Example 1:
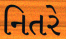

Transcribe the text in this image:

નિતરે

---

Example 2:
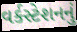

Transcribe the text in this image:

વર્કસ્ટેશનનું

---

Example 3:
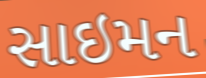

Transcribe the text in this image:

સાઇમન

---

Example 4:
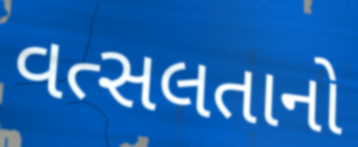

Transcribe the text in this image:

વત્સલતાનો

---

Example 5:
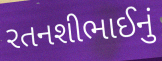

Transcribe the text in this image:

રતનશીભાઈનું